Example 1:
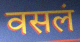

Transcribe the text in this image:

वसलं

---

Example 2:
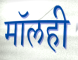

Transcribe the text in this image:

मॉलही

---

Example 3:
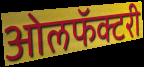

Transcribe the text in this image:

ओलफॅक्टरी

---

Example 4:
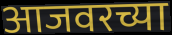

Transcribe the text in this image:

आजवरच्या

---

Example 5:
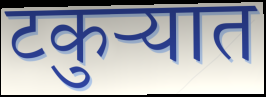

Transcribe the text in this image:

टकुऱ्यात